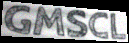
GMSCL